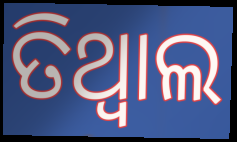
ତିଥ୍ୱାଲ